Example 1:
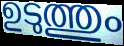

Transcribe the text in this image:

ഉടുത്തും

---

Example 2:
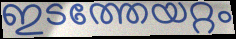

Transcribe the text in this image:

ഇടത്തേയറ്റം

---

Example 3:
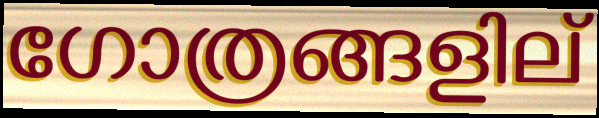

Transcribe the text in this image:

ഗോത്രങ്ങളില്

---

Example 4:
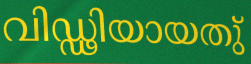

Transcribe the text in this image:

വിഡ്ഢിയായതു്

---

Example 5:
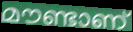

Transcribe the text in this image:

മൗണ്ടാണ്